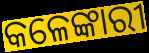
କଳେଙ୍କାରୀ